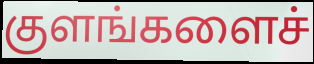
குளங்களைச்